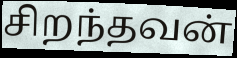
சிறந்தவன்